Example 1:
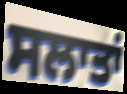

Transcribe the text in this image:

ਸਲਾਤਾਂ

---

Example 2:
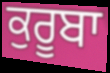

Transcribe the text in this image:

ਕੁਰੂਬਾ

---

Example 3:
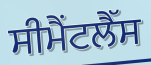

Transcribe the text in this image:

ਸੀਮੈਂਟਲੈੱਸ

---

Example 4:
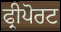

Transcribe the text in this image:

ਫ੍ਰੀਪੋਰਟ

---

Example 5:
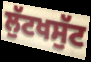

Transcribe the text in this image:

ਲੁੱਟਖਸੁੱਟ